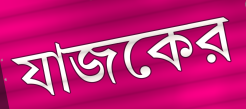
যাজকের